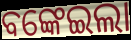
ବଙ୍କେଇଲା